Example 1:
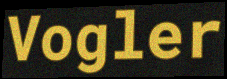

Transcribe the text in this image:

Vogler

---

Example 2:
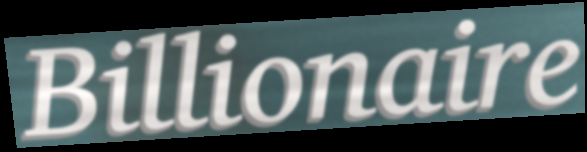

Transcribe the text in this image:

Billionaire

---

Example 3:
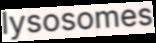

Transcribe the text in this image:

lysosomes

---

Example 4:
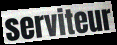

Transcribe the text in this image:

serviteur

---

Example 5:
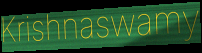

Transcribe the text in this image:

Krishnaswamy